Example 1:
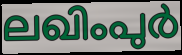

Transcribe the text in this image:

ലഖിംപുർ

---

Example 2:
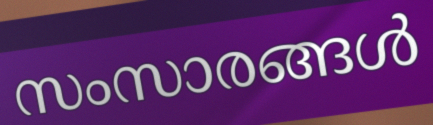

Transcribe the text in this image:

സംസാരങ്ങൾ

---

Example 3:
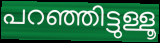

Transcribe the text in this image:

പറഞ്ഞിട്ടുള്ളൂ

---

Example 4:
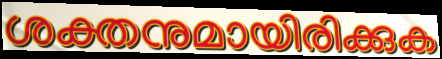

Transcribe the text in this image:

ശക്തനുമായിരിക്കുക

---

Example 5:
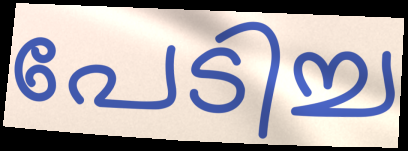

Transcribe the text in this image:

പേടിച്ച